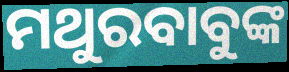
ମଥୁରବାବୁଙ୍କ